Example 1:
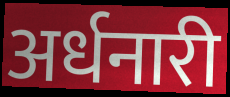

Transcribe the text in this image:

अर्धनारी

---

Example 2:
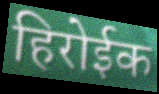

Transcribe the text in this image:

हिरोईक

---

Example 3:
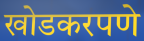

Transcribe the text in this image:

खोडकरपणे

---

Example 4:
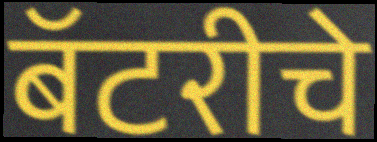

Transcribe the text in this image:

बॅटरीचे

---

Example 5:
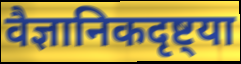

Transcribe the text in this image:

वैज्ञानिकदृष्ट्या